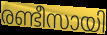
രണ്ടീസായി